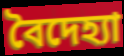
বৈদেহ্যা